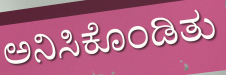
ಅನಿಸಿಕೊಂಡಿತು